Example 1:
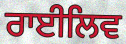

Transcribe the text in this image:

ਰਾਈਲਿਵ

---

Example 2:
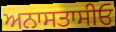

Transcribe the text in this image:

ਅਨਾਸਤਾਸੀਓ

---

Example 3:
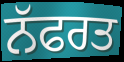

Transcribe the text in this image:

ਨੱਫਰਤ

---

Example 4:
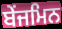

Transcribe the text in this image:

ਬੇਂਜਮਿਨ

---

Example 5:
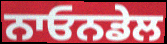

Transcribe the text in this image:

ਨਾਓਨਡੇਲ